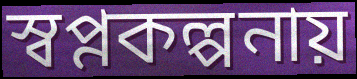
স্বপ্নকল্পনায়